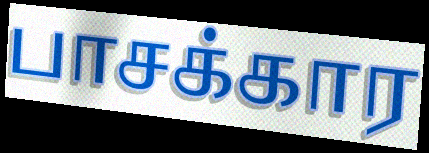
பாசக்கார